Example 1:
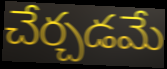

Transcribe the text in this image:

చేర్చడమే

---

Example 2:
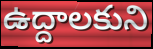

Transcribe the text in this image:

ఉద్దాలకుని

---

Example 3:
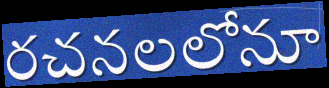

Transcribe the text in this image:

రచనలలోనూ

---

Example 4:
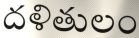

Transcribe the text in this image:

దళితులం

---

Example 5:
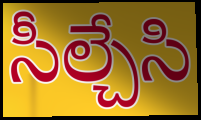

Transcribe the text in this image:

సీల్చేసి